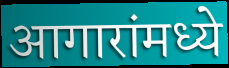
आगारांमध्ये